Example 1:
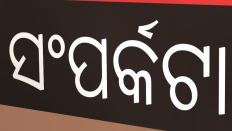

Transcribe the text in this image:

ସଂପର୍କଟା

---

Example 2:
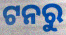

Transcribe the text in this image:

ଟନରୁ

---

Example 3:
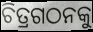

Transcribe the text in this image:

ଚିତ୍ରଗଠନକୁ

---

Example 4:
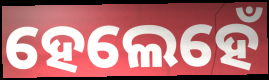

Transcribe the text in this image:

ହେଲେହେଁ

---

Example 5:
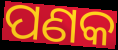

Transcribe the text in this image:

ପଣକ